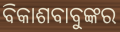
ବିକାଶବାବୁଙ୍କର